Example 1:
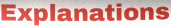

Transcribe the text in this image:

Explanations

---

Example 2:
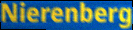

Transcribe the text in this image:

Nierenberg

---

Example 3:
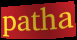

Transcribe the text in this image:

patha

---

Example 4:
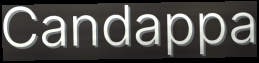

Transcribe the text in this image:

Candappa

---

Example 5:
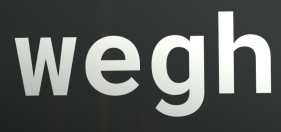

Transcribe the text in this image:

wegh